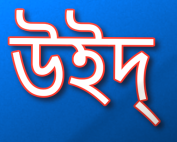
উইদ্